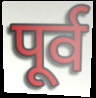
पूर्व